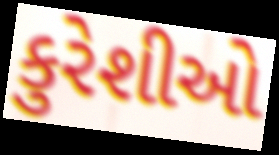
કુરેશીઓ